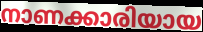
നാണക്കാരിയായ